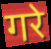
गरे